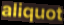
aliquot